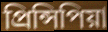
প্ৰিন্সিপিয়া